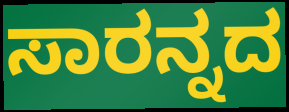
ಸಾರನ್ನದ